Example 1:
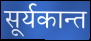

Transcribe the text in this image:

सूर्यकान्त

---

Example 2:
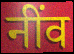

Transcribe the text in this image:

नींव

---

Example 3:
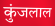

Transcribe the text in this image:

कुंजलाल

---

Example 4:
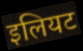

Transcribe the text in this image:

इलियट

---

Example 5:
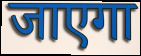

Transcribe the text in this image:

जाएगा